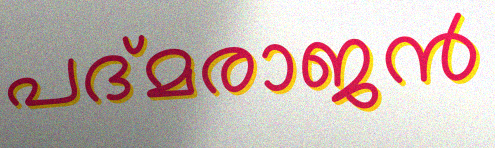
പദ്മരാജൻ